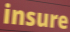
insure